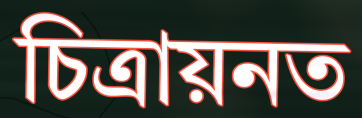
চিত্ৰায়নত